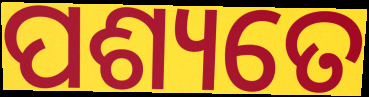
ପଶ୍ୟତେ